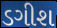
ડગીશ